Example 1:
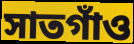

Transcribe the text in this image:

সাতগাঁও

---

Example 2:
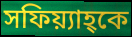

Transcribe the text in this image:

সফিয়্যাহ্কে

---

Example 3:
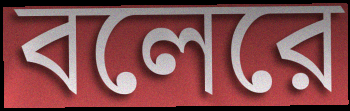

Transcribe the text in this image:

বলেরে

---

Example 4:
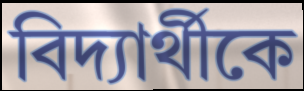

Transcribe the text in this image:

বিদ্যার্থীকে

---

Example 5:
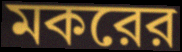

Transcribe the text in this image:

মকরের